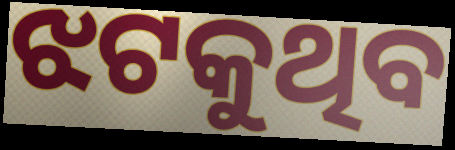
ଝଟକୁଥିବ